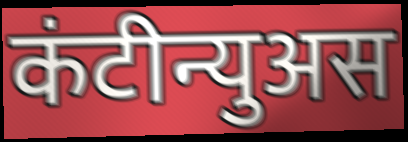
कंटीन्युअस